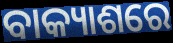
ବାକ୍ୟାଶରେ